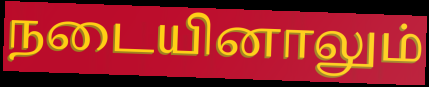
நடையினாலும்